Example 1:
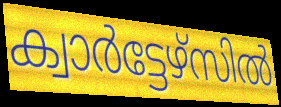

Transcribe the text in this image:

ക്വാർട്ടേഴ്സിൽ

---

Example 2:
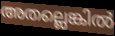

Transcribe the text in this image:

അതല്ലെങ്കിൽ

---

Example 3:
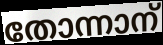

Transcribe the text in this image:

തോന്നാന്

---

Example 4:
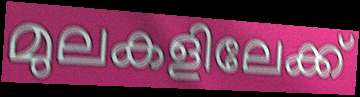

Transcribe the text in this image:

മുലകളിലേക്ക്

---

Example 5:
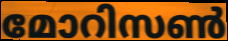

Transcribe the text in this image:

മോറിസൺ